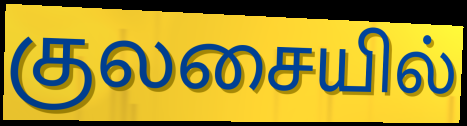
குலசையில்